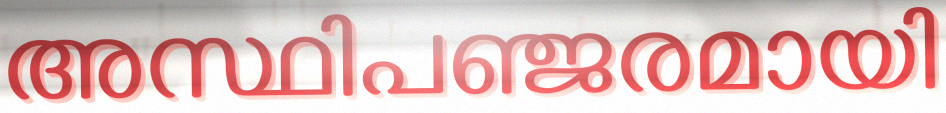
അസ്ഥിപഞ്ജരമായി